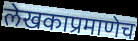
लेखकाप्रमाणेच